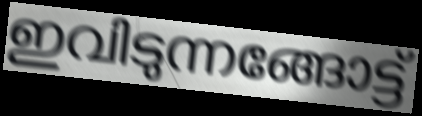
ഇവിടുന്നങ്ങോട്ട്